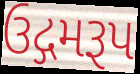
ઉદ્ગમરૂપ